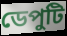
ডেপুটি